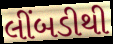
લીંબડીથી